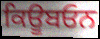
ਕਿਊਬਓਨ